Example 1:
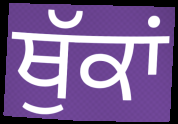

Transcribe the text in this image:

ਥੁੱਕਾਂ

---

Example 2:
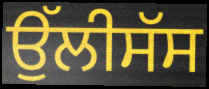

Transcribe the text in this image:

ਉੱਲੀਸੱਸ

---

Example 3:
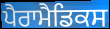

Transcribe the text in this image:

ਪੈਰਾਮੈਡਿਕਸ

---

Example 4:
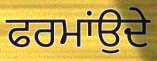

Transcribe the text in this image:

ਫਰਮਾਂਉਦੇ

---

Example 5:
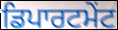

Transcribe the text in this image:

ਡਿਪਾਰਟਮੇਂਟ